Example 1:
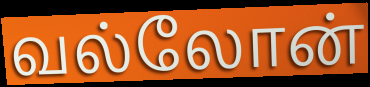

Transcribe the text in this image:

வல்லோன்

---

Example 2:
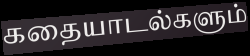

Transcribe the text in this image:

கதையாடல்களும்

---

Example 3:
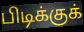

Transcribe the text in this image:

பிடிக்குக்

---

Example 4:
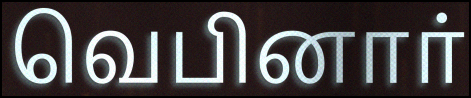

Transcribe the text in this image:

வெபினார்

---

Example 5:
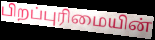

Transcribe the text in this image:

பிறப்புரிமையின்